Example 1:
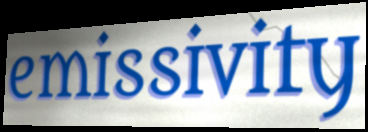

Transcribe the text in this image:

emissivity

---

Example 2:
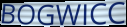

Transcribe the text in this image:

BOGWICC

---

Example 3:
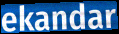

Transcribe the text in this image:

ekandar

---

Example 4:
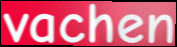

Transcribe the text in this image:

vachen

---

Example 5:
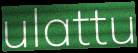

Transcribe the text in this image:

ulattu